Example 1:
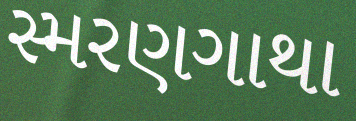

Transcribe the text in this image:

સ્મરણગાથા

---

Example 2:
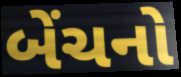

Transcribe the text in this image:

બેંચનો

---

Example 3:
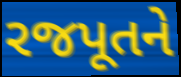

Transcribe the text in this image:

રજપૂતને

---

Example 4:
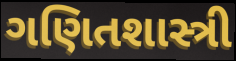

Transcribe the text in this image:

ગણિતશાસ્ત્રી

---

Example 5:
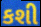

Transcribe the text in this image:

કશી